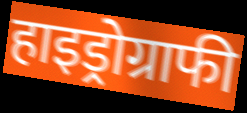
हाइड्रोग्राफी